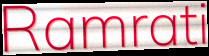
Ramrati